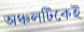
অঞ্চলটিকেই